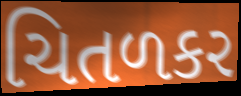
ચિતળકર